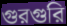
গুরগুরি